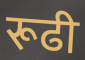
रूढी